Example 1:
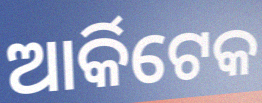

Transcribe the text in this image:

ଆର୍କିଟେକ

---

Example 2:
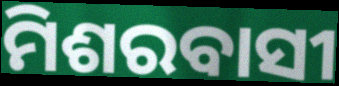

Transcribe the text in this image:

ମିଶରବାସୀ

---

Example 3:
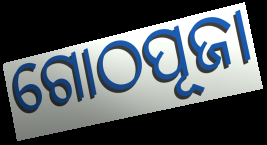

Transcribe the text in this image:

ଗୋଠପୂଜା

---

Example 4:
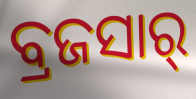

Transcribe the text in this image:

ବ୍ରଜସାର୍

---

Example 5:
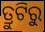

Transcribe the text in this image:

ତ୍ରୁଟିରୁ